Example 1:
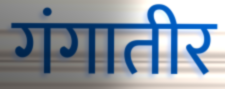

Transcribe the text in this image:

गंगातीर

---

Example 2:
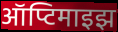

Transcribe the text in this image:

ऑप्टिमाइझ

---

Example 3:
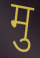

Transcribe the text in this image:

मु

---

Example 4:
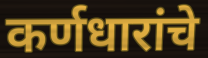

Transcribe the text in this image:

कर्णधारांचे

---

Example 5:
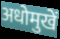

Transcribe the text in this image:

अधोमुखें